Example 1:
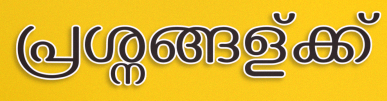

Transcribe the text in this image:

പ്രശ്നങ്ങള്ക്ക്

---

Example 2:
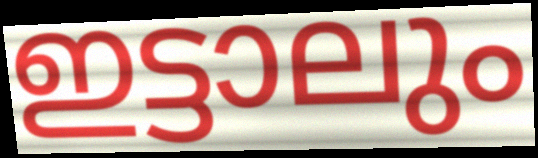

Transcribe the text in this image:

ഇട്ടാലും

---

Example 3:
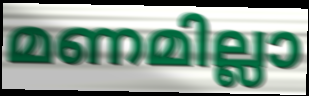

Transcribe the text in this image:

മണമില്ലാ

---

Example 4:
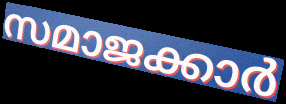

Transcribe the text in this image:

സമാജക്കാർ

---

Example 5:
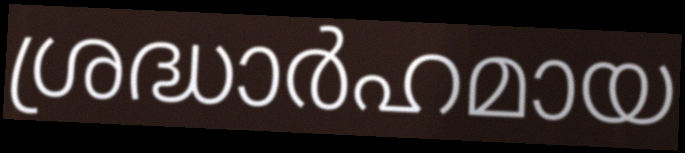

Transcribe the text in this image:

ശ്രദ്ധാർഹമായ